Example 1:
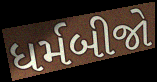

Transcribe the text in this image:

ધર્મબીજો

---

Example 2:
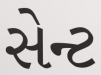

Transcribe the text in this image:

સેન્ટ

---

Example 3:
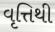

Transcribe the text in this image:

વૃત્તિથી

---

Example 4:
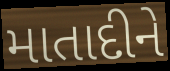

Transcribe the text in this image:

માતાદીને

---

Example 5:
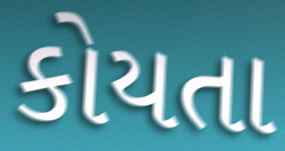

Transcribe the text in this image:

કોયતા